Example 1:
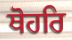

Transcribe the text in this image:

ਥੋਹਰਿ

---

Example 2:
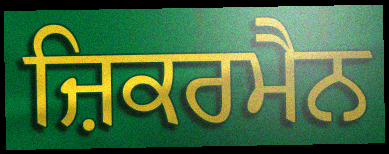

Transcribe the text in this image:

ਜ਼ਿਕਰਮੈਨ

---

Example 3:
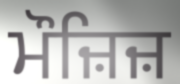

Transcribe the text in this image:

ਮੌਜ਼ਿਜ਼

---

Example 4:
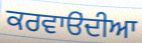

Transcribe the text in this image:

ਕਰਵਾੳਂਦੀਆ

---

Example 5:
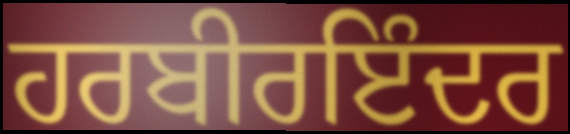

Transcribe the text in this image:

ਹਰਬੀਰਇੰਦਰ